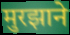
मुरझाने